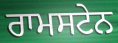
ਰਾਮਸਟੇਨ